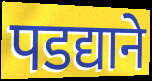
पडद्याने